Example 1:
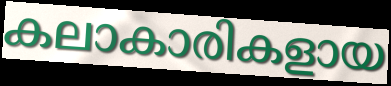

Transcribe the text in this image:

കലാകാരികളായ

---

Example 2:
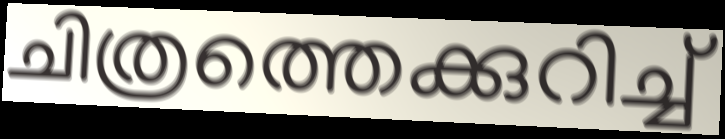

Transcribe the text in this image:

ചിത്രത്തെക്കുറിച്ച്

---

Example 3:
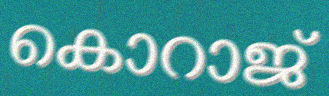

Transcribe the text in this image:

കൊറാജ്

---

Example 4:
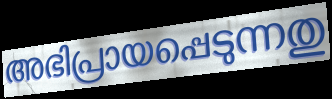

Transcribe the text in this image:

അഭിപ്രായപ്പെടുന്നതു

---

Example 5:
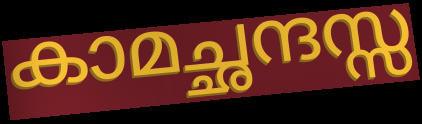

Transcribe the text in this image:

കാമച്ഛന്ദസ്സ